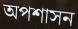
অপশাসন